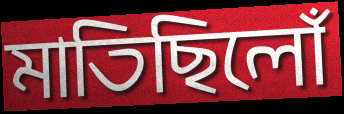
মাতিছিলোঁ